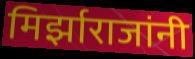
मिर्झाराजांनी